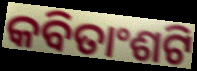
କବିତାଂଶଟି